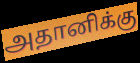
அதானிக்கு